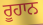
ਰੂਹਾਨ